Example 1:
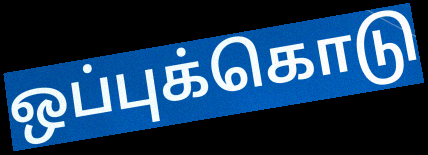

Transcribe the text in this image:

ஒப்புக்கொடு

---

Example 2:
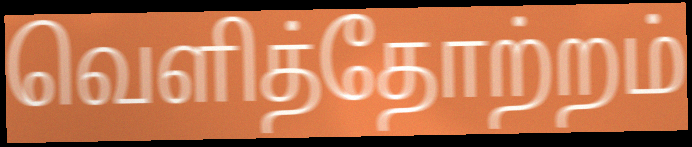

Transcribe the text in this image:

வெளித்தோற்றம்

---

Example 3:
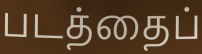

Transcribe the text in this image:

படத்தைப்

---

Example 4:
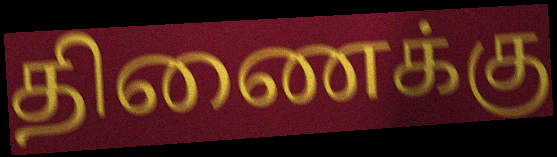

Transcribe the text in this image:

திணைக்கு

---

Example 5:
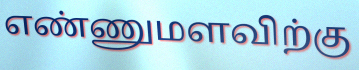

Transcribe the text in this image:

எண்ணுமளவிற்கு